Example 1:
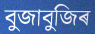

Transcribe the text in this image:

বুজাবুজিৰ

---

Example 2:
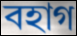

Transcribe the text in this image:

বহাগ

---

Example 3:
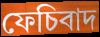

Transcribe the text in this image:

ফেচিবাদ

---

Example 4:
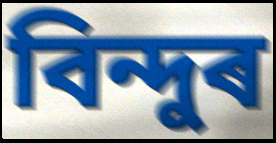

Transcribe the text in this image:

বিন্দুৰ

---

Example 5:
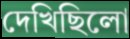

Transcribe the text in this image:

দেখিছিলো